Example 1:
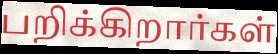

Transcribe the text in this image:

பறிக்கிறார்கள்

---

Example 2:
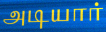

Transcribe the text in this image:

அடியார்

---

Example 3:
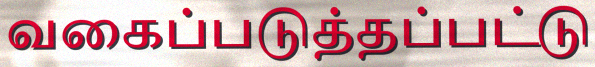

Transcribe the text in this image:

வகைப்படுத்தப்பட்டு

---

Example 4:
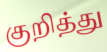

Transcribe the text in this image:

குறித்து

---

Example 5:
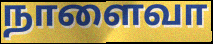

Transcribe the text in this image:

நாளைவா